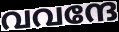
വവന്ദേ